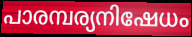
പാരമ്പര്യനിഷേധം